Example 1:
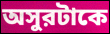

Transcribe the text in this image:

অসুরটাকে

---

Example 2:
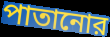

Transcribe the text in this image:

পাতানোর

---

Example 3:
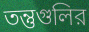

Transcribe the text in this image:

তন্তুগুলির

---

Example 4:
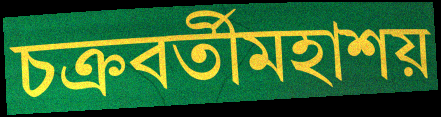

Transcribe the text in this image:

চক্রবর্তীমহাশয়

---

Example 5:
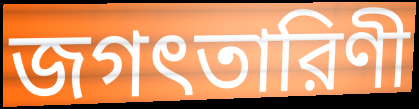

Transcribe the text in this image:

জগৎতারিণী